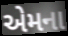
એમના